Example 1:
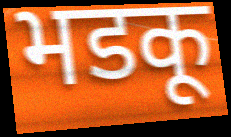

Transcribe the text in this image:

भडकू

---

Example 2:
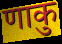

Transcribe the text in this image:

णाकु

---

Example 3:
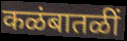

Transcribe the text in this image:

कळंबातळीं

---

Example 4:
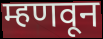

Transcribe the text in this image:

म्हणवून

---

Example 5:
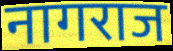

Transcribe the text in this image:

नागराज